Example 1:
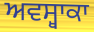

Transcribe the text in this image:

ਅਵਸ੍ਥਾਕਾ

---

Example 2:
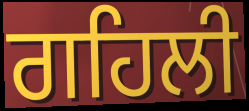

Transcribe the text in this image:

ਗਹਿਲੀ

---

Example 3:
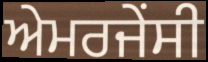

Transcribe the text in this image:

ਅੇਮਰਜੇਂਸੀ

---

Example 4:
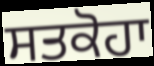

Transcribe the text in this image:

ਸਤਕੋਹਾ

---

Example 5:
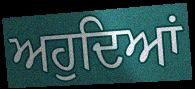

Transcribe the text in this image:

ਅਹੁਦਿਆਂ